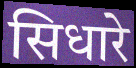
सिधारे